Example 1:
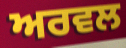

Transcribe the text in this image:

ਅਰਵਲ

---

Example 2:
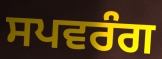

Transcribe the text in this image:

ਸਪਵਰੰਗ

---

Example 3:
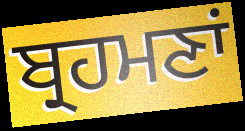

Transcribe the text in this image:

ਬ੍ਰਹਮਣਾਂ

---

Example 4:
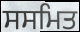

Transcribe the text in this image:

ਸਸਮਿਤ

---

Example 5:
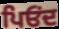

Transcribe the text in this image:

ਪਿਓਂਦ